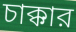
চাক্কার